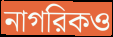
নাগরিকও